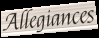
Allegiances